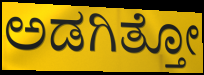
ಅಡಗಿತ್ತೋ